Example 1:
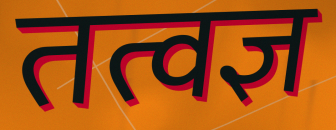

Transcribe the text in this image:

तत्वज्ञ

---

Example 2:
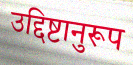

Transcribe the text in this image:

उद्दिष्टानुरूप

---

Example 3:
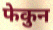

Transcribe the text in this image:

फेकुन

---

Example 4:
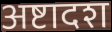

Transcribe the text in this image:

अष्टादश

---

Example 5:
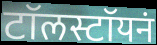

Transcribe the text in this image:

टॉलस्टॉयनं